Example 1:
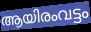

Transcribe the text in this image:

ആയിരംവട്ടം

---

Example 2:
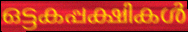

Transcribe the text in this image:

ഒട്ടകപ്പക്ഷികൾ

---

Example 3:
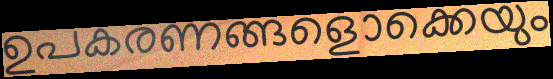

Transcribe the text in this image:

ഉപകരണങ്ങളൊക്കെയും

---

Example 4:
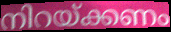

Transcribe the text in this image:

നിറയ്ക്കണം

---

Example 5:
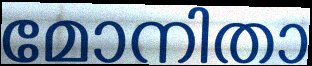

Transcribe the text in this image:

മോനിതാ